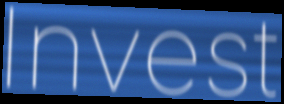
Invest